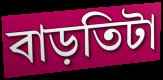
বাড়তিটা